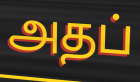
அதப்